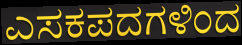
ಎಸಕಪದಗಳಿಂದ